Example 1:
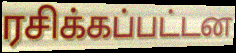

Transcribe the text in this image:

ரசிக்கப்பட்டன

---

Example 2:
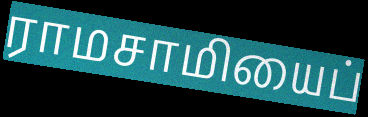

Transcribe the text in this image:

ராமசாமியைப்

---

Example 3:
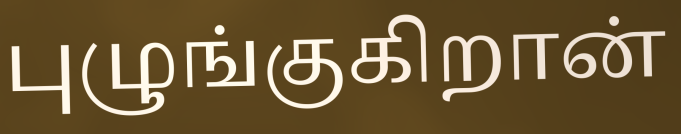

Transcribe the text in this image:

புழுங்குகிறான்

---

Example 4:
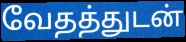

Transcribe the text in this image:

வேதத்துடன்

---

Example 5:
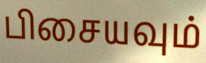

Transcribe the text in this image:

பிசையவும்